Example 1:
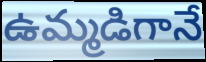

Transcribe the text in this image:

ఉమ్మడిగానే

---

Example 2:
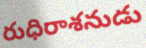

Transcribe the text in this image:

రుధిరాశనుడు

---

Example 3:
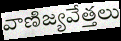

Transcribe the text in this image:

వాణిజ్యవేత్తలు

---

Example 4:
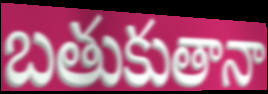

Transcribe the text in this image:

బతుకుతానా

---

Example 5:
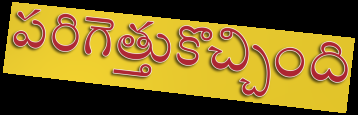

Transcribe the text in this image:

పరిగెత్తుకొచ్చింది